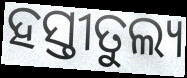
ହସ୍ତୀତୁଲ୍ୟ